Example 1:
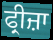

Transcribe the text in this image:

ਫ੍ਰੀਜ਼ਾ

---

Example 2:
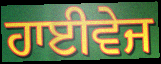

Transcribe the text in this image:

ਹਾਈਵੇਜ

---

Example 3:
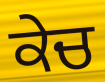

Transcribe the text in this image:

ਕੇਚ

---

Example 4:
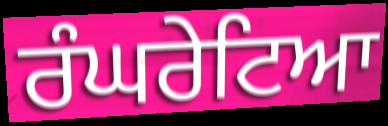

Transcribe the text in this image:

ਰੰਘਰੇਟਿਆ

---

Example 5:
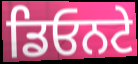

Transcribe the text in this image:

ਡਿਓਨਟੇ